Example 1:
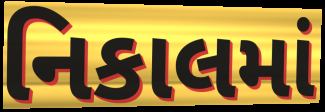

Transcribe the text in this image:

નિકાલમાં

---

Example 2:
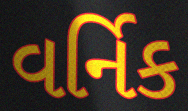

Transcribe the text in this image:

વર્નિક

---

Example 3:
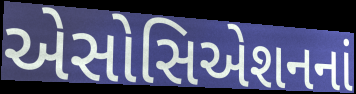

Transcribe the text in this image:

એસોસિએશનનાં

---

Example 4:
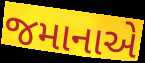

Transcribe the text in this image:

જમાનાએ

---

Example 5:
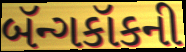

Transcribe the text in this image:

બૅન્ગકૉકની